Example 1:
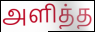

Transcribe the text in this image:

அளித்த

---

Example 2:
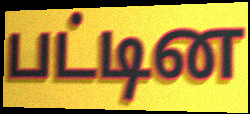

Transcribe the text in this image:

பட்டின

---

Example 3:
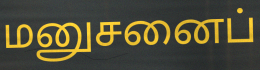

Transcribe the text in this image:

மனுசனைப்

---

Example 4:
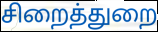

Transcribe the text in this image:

சிறைத்துறை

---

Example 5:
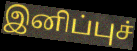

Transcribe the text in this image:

இனிப்புச்